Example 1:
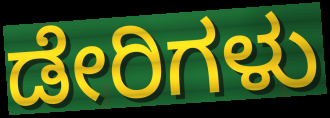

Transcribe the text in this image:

ಡೇರಿಗಳು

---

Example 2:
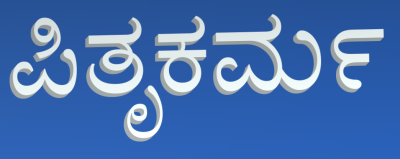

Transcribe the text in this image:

ಪಿತೃಕರ್ಮ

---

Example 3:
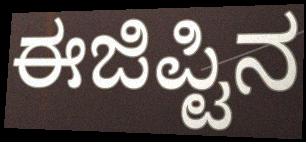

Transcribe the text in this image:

ಈಜಿಪ್ಟಿನ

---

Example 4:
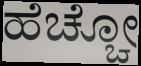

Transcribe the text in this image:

ಹೆಚ್ಚೋ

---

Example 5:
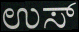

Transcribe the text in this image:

ಉಸ್